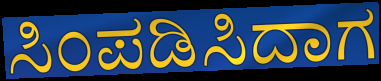
ಸಿಂಪಡಿಸಿದಾಗ